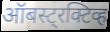
ऑबस्ट्रक्टिव्ह